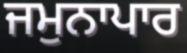
ਜਮੁਨਾਪਾਰ